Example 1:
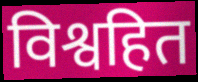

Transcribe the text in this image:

विश्वहित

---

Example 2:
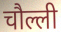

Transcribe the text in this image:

चौल्ली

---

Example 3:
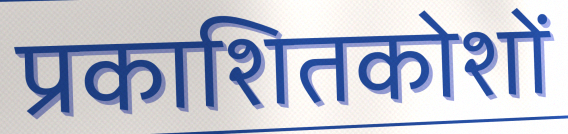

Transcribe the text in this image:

प्रकाशितकोशों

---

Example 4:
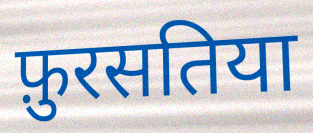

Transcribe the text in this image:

फ़ुरसतिया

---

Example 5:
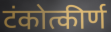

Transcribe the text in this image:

टंकोत्कीर्ण